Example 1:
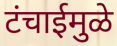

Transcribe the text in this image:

टंचाईमुळे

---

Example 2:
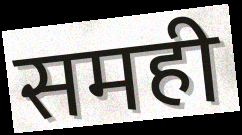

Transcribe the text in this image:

समही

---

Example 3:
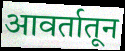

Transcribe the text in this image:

आवर्तातून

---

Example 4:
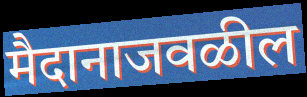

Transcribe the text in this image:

मैदानाजवळील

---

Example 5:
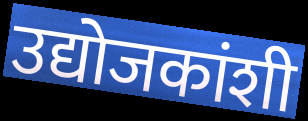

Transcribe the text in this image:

उद्योजकांशी